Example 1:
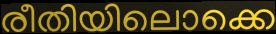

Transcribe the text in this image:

രീതിയിലൊക്കെ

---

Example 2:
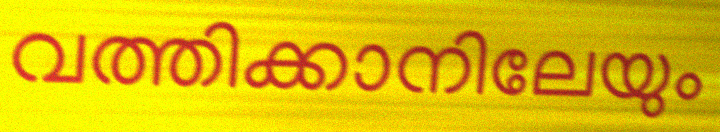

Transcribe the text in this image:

വത്തിക്കാനിലേയും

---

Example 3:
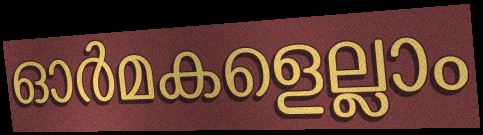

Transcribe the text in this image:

ഓർമകളെല്ലാം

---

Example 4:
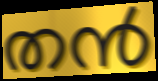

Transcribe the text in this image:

തൻ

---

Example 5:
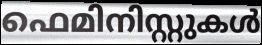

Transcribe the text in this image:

ഫെമിനിസ്റ്റുകൾ